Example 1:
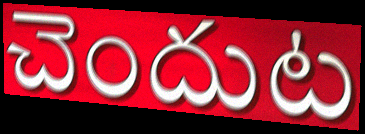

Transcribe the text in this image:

చెందుట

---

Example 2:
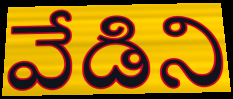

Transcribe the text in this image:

వేడిని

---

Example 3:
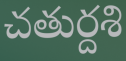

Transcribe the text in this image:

చతుర్దశి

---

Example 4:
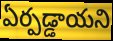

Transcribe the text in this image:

ఏర్పడ్డాయని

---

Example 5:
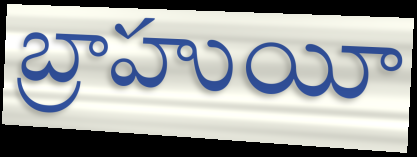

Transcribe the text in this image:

బ్రాహుయీ